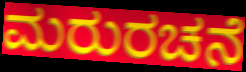
ಮರುರಚನೆ